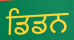
ਡਿਡਨ